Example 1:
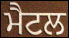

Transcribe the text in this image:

ਮੈਟਲ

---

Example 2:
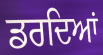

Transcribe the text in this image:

ਡਰਦਿਆਂ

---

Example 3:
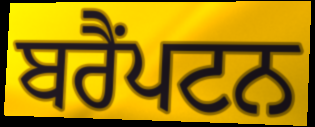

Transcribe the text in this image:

ਬਰੈੰਪਟਨ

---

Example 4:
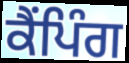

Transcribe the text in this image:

ਕੈਂਪਿੰਗ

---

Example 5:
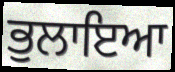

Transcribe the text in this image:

ਭੁਲਾਇਆ